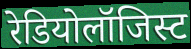
रेडियोलॉजिस्ट